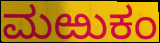
ಮಱುಕಂ